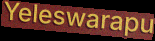
Yeleswarapu